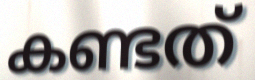
കണ്ടത്